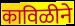
काविळीने